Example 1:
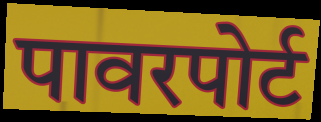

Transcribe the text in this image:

पावरपोर्ट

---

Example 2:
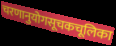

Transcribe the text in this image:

चरणानुयोगसूचकचूलिका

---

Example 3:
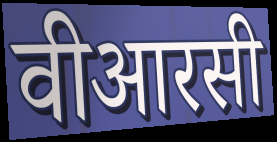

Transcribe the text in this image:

वीआरसी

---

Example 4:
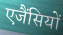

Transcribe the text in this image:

एजैंसियों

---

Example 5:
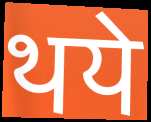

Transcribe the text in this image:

थये